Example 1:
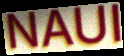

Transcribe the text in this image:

NAUI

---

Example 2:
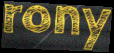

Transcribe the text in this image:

rony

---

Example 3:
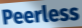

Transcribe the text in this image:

Peerless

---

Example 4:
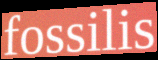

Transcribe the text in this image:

fossilis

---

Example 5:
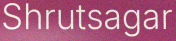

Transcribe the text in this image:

Shrutsagar